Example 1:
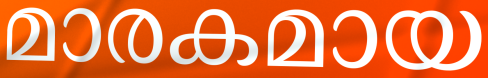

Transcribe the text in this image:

മാരകമായ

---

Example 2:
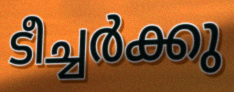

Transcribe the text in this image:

ടീച്ചർക്കു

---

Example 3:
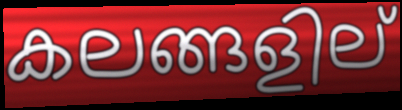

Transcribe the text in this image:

കലങ്ങളില്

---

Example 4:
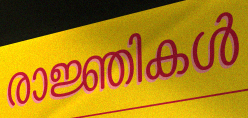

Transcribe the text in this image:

രാജ്ഞികൾ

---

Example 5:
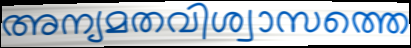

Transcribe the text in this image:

അന്യമതവിശ്വാസത്തെ